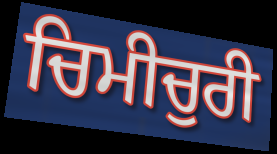
ਚਿਮੀਚੁਰੀ